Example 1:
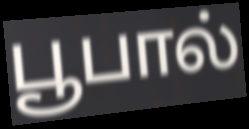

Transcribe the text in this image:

பூபால்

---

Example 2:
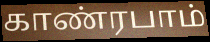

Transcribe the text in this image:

காண்ரபாம்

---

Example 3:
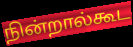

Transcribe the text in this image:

நின்றால்கூட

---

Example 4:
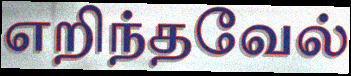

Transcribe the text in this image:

எறிந்தவேல்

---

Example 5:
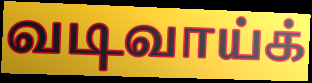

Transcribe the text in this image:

வடிவாய்க்